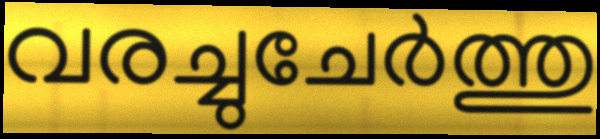
വരച്ചുചേർത്തു